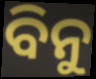
ବିନୁ